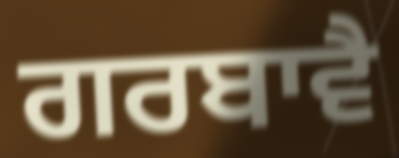
ਗਰਬਾਵੈ